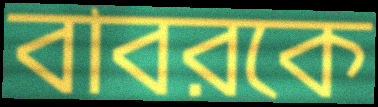
বাবরকে